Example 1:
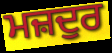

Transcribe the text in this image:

ਮਜ਼ਦੁਰ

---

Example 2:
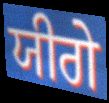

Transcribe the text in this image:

ਯੀਗੇ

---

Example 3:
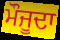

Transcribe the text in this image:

ਮੌਜੂਦਾ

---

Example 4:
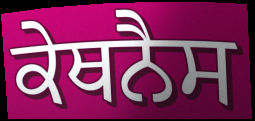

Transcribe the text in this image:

ਕੇਥਨੈਸ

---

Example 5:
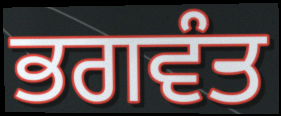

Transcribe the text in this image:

ਭਗਵੰਤ